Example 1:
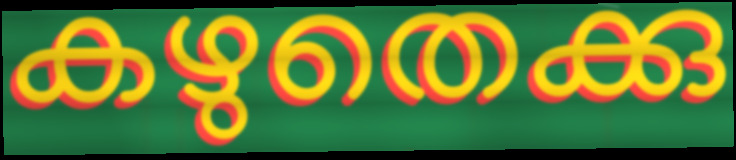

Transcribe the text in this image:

കഴുതെക്കു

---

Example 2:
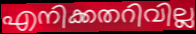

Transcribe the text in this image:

എനിക്കതറിവില്ല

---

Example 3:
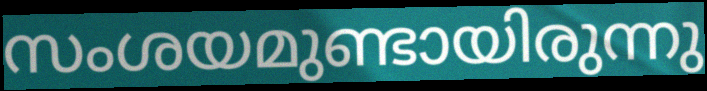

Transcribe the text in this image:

സംശയമുണ്ടായിരുന്നു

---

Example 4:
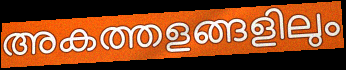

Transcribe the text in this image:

അകത്തളങ്ങളിലും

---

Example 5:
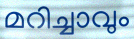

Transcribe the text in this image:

മറിച്ചാവും